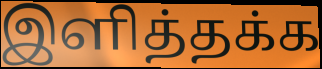
இளித்தக்க